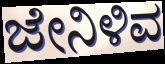
ಜೇನಿಳಿವ